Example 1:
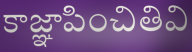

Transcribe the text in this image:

కాజ్ఞాపించితివి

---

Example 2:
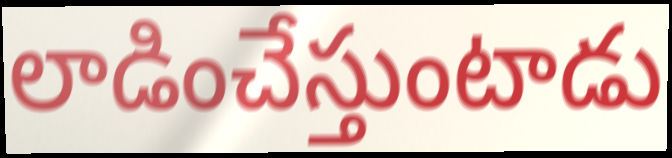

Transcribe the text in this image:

లాడించేస్తుంటాడు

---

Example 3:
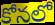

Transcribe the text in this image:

కోనలో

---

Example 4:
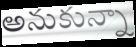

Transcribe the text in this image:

అనుకున్నా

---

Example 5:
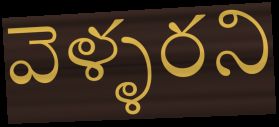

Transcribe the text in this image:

వెళ్ళరని